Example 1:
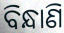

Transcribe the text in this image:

ବିନ୍ଧାଣି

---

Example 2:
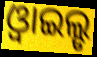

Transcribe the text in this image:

ଓ୍ବାଇଲ୍ଡ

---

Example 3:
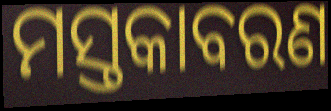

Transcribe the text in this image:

ମସ୍ତକାବରଣ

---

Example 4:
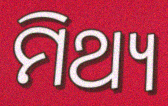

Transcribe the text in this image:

ମିଥ୍ୟ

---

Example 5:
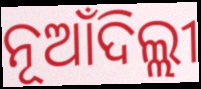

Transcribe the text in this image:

ନୂଆଁଦିଲ୍ଲୀ